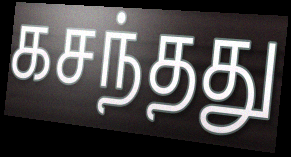
கசந்தது